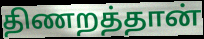
திணறத்தான்